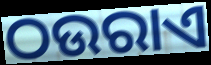
ଠଉରାଏ